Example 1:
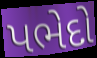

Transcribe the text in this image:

પભેદો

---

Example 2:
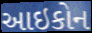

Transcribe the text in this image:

આઇકોન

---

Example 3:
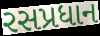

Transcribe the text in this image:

રસપ્રધાન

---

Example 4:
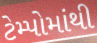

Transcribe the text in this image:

ટેમ્પોમાંથી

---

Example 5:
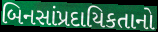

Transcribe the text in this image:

બિનસાંપ્રદાયિકતાનો